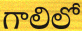
గాలిలో